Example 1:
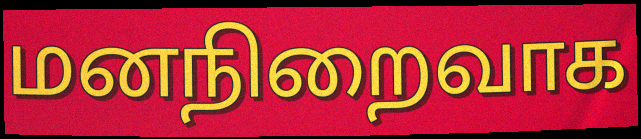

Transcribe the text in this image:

மனநிறைவாக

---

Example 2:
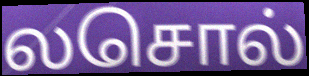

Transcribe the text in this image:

லசொல்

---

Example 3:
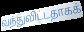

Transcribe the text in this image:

வந்துவிட்டதாகக்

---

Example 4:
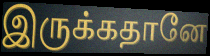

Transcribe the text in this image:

இருக்கதானே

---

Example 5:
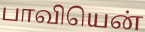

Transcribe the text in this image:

பாவியென்